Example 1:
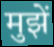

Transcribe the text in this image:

मुझें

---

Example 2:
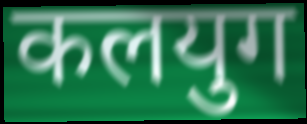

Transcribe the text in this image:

कलयुग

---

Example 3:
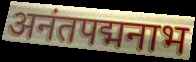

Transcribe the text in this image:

अनंतपद्मनाभ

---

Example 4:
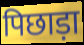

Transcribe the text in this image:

पिछाड़ा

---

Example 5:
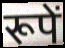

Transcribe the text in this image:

रूपें